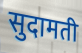
सुदामती